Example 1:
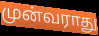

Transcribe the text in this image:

முன்வராது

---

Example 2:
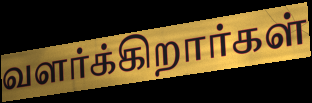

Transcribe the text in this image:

வளர்க்கிறார்கள்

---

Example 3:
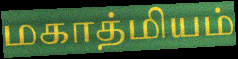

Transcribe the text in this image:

மகாத்மியம்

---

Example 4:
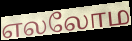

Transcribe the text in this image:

எலலோம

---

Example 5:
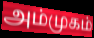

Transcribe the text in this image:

அம்முகம்